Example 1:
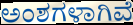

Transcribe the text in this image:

ಅಂಶಗಳಾಗಿವೆ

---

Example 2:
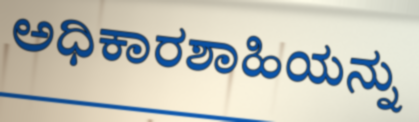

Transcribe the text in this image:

ಅಧಿಕಾರಶಾಹಿಯನ್ನು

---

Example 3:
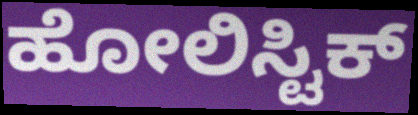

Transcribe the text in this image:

ಹೋಲಿಸ್ಟಿಕ್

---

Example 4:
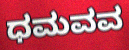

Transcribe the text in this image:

ಧಮವವ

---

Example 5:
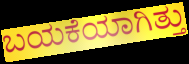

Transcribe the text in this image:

ಬಯಕೆಯಾಗಿತ್ತು